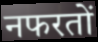
नफरतों